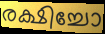
രക്ഷിച്ചോ